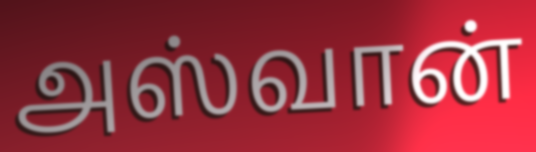
அஸ்வான்